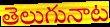
తెలుగునాట